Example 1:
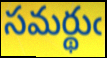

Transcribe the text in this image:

సమర్థుఁ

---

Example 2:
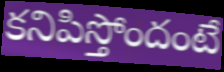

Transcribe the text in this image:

కనిపిస్తోందంటే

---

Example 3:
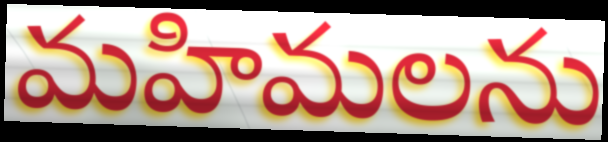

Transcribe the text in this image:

మహిమలను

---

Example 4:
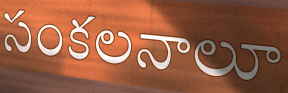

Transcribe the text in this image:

సంకలనాలూ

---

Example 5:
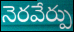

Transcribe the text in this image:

నెరవేర్పు